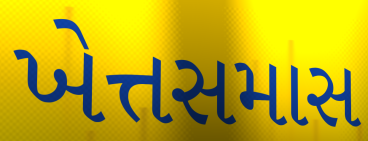
ખેત્તસમાસ